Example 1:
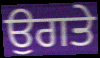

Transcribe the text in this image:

ਉਗਤੇ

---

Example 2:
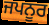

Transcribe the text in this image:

ਜਪਨੂਰ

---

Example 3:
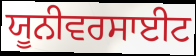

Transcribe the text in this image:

ਯੂਨੀਵਰਸਾਈਟ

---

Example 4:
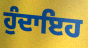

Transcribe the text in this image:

ਹੁੰਦਾਇਹ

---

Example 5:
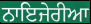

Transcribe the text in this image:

ਨਾਇਜੇਰੀਆ